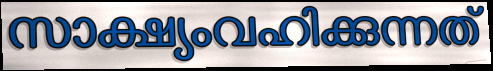
സാക്ഷ്യംവഹിക്കുന്നത്